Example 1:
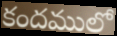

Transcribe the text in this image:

కందములో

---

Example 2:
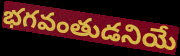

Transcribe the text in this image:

భగవంతుడనియే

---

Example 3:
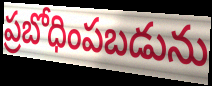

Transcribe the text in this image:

ప్రబోధింపబడును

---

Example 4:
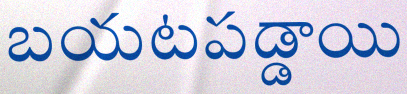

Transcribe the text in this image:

బయటపడ్డాయి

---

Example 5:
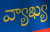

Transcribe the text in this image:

వ్యాఖ్య